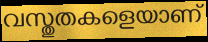
വസ്തുതകളെയാണ്